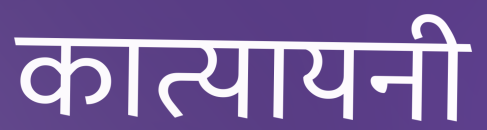
कात्यायनी